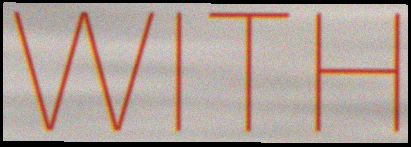
WITH